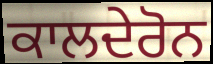
ਕਾਲਦੇਰੋਨ